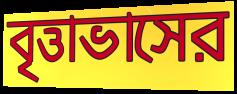
বৃত্তাভাসের